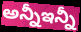
అన్నీఇన్నీ